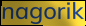
nagorik